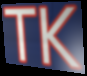
TK